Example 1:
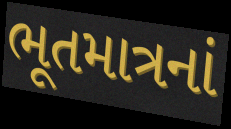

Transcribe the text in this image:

ભૂતમાત્રનાં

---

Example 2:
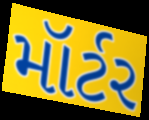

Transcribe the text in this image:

મૉર્ટર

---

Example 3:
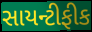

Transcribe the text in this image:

સાયન્ટીફીક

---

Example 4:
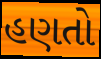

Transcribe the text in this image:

હણતો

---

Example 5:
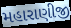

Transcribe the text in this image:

મહારાણીજી